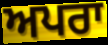
ਅਪਰਾ